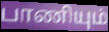
பாணியும்